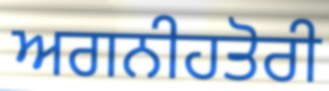
ਅਗਨੀਹਤੋਰੀ